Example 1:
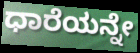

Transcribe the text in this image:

ಧಾರೆಯನ್ನೇ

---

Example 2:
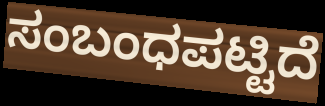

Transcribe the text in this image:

ಸಂಬಂಧಪಟ್ಟಿದೆ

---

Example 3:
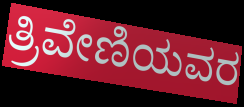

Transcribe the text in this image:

ತ್ರಿವೇಣಿಯವರ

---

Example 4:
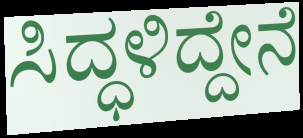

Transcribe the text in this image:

ಸಿದ್ಧಳಿದ್ದೇನೆ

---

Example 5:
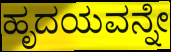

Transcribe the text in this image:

ಹೃದಯವನ್ನೇ